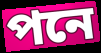
পনে